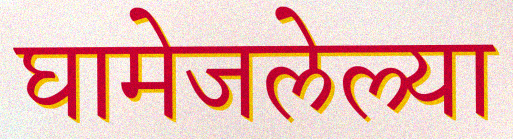
घामेजलेल्या